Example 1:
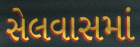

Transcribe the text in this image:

સેલવાસમાં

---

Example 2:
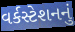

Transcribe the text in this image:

વર્કસ્ટેશનનું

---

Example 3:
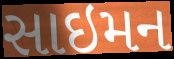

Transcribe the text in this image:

સાઇમન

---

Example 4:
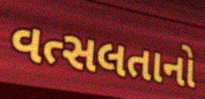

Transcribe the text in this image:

વત્સલતાનો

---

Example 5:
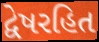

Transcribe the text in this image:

દ્વેષરહિત